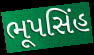
ભૂપસિંહ